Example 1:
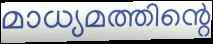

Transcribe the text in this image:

മാധ്യമത്തിന്റെ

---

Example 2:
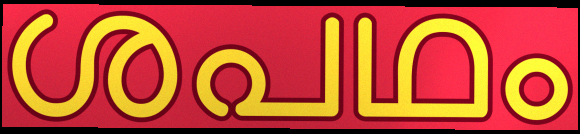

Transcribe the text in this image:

ശപഥം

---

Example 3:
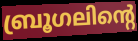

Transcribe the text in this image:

ബ്രൂഗലിന്റെ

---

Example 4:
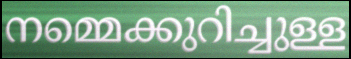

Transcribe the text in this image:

നമ്മെക്കുറിച്ചുള്ള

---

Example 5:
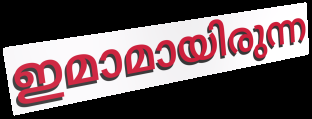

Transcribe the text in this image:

ഇമാമായിരുന്ന